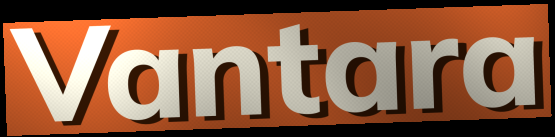
Vantara